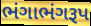
ભંગાભંગરૂપ